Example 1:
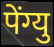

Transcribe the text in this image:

पेंग्यु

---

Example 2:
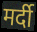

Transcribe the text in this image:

मर्दी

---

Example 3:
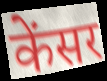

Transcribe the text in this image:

केंसर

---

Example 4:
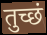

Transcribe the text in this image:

तुच्छं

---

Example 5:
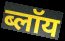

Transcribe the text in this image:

ब्लॉय